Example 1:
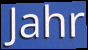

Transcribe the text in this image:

Jahr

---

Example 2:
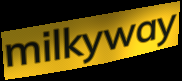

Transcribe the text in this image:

milkyway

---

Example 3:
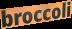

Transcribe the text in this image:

broccoli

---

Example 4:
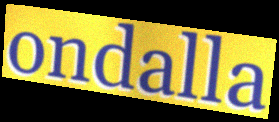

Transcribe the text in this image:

ondalla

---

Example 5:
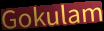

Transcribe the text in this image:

Gokulam